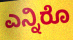
ಎನ್ನಿರೊ